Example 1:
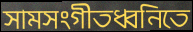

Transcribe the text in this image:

সামসংগীতধ্বনিতে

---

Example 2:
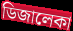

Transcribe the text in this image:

ডিজালেকা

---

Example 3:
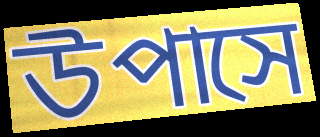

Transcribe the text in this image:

উপাসে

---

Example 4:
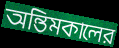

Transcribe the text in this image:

অন্তিমকালের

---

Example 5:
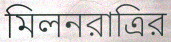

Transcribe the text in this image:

মিলনরাত্রির